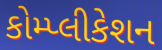
કોમ્પ્લીકેશન